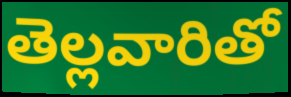
తెల్లవారితో